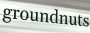
groundnuts